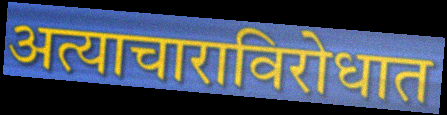
अत्याचाराविरोधात